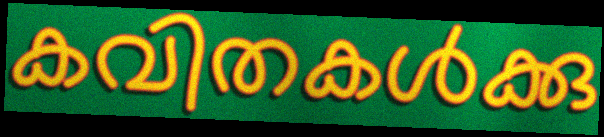
കവിതകൾക്കു